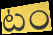
టం